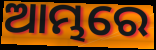
ଆମ୍ଭରେ